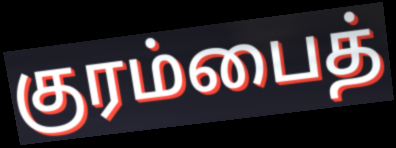
குரம்பைத்